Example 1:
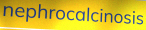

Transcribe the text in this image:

nephrocalcinosis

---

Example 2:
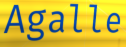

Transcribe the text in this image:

Agalle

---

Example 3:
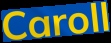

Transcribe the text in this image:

Caroll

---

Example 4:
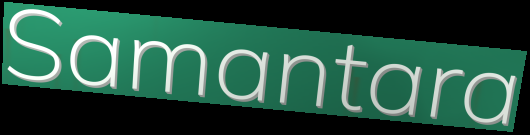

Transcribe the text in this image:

Samantara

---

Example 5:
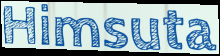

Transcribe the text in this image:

Himsuta